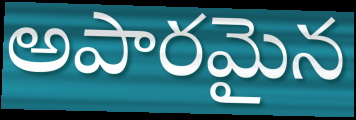
అపారమైన